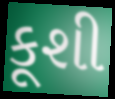
કૂશી